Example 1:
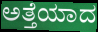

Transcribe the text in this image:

ಅತ್ತೆಯಾದ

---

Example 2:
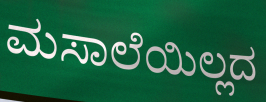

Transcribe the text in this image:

ಮಸಾಲೆಯಿಲ್ಲದ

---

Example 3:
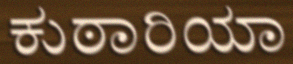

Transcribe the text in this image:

ಕುಠಾರಿಯಾ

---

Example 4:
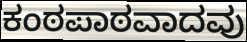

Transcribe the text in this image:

ಕಂಠಪಾಠವಾದವು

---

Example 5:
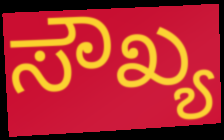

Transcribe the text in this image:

ಸೌಖ್ಯ